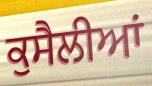
ਕੁਸੈਲੀਆਂ